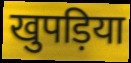
खुपड़िया